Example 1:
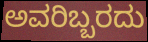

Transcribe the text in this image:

ಅವರಿಬ್ಬರದು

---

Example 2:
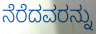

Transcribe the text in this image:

ನೆರೆದವರನ್ನು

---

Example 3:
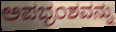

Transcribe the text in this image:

ಅಪಭ್ರಂಶವನ್ನು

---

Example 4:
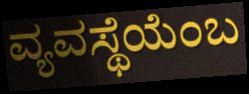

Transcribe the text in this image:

ವ್ಯವಸ್ಥೆಯೆಂಬ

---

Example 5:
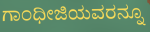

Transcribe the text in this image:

ಗಾಂಧೀಜಿಯವರನ್ನೂ